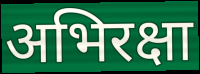
अभिरक्षा